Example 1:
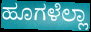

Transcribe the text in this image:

ಹೂಗಳೆಲ್ಲಾ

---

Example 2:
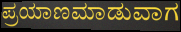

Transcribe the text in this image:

ಪ್ರಯಾಣಮಾಡುವಾಗ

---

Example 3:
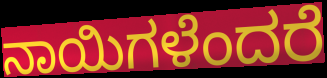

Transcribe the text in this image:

ನಾಯಿಗಳೆಂದರೆ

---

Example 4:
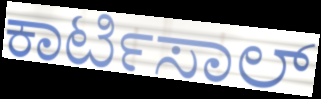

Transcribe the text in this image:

ಕಾರ್ಟಿಸಾಲ್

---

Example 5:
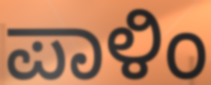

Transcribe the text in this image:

ಪಾಳಿಂ